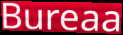
Bureaa